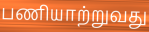
பணியாற்றுவது